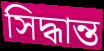
সিদ্ধান্ত